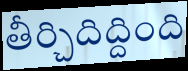
తీర్చిదిద్దింది